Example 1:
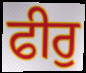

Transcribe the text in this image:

ਫੀਰੁ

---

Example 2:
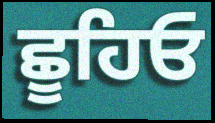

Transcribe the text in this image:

ਛੂਹਿਓ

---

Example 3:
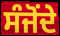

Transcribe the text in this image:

ਸੰਜੋਂਦੇ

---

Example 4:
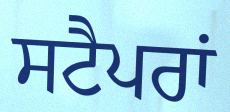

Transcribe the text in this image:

ਸਟੈਪਰਾਂ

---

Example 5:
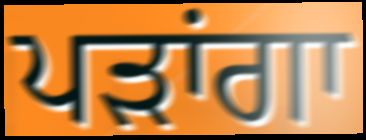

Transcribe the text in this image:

ਪੜਾਂਗਾ